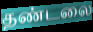
தண்டலை